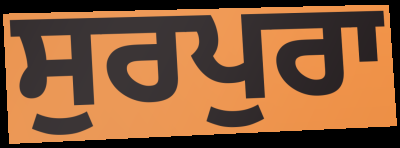
ਸੁਰਪੁਰਾ